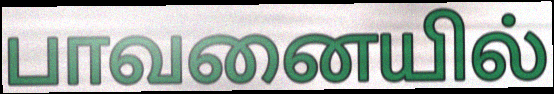
பாவனையில்